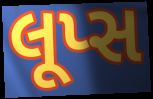
લૂપ્સ